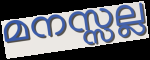
മനസ്സല്ല